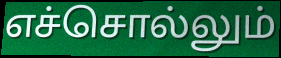
எச்சொல்லும்